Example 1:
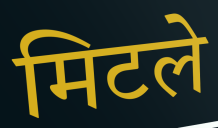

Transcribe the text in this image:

मिटले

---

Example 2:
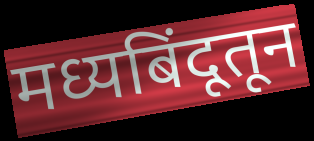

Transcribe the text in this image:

मध्यबिंदूतून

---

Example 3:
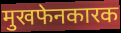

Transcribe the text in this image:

मुखफेनकारक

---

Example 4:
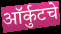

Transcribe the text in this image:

ऑर्कुटचे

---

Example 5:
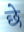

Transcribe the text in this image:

छे